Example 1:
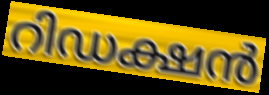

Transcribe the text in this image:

റിഡക്ഷൻ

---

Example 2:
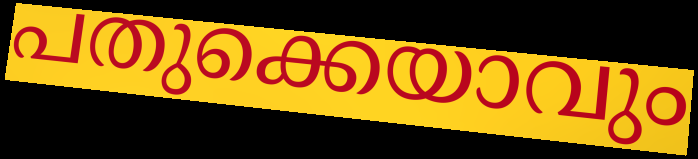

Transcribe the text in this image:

പതുക്കെയാവും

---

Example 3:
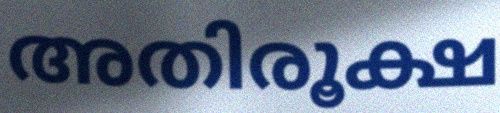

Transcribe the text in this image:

അതിരൂക്ഷ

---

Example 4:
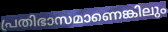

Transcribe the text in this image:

പ്രതിഭാസമാണെങ്കിലും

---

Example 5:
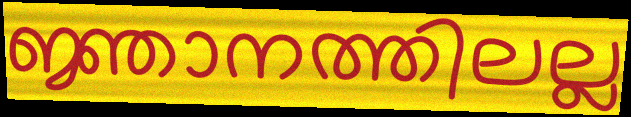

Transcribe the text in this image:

ജ്ഞാനത്തിലല്ല